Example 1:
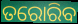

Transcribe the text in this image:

ତରୋରିବ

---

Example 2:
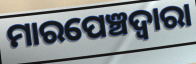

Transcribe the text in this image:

ମାରପେଞ୍ଚଦ୍ବାରା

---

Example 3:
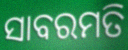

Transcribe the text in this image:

ସାବରମତି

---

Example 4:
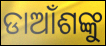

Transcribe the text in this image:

ଡାଆଁଶଙ୍କୁ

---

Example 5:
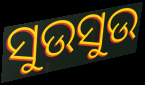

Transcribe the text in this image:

ସୁଉସୁଉ